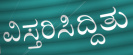
ವಿಸ್ತರಿಸಿದ್ದಿತು